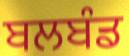
ਬਲਬੰਡ